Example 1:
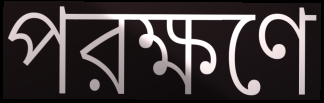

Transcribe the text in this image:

পরক্ষণে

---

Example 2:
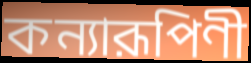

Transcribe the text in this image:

কন্যারূপিণী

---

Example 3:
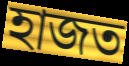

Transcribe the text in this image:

হাজত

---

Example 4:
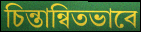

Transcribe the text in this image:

চিন্তান্বিতভাবে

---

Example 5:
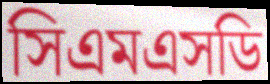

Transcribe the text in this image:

সিএমএসডি